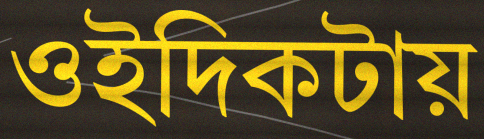
ওইদিকটায়